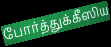
போர்த்துக்கீஸிய